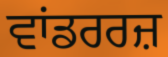
ਵਾਂਡਰਰਜ਼